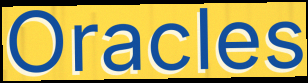
Oracles